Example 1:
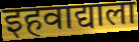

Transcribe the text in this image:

इहवाद्याला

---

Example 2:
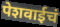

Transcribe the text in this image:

पेशवाईचं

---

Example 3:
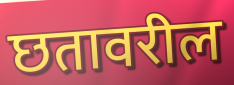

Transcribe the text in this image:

छतावरील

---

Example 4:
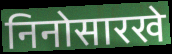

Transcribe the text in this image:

निनोसारखे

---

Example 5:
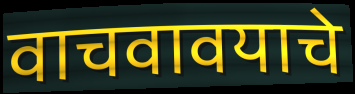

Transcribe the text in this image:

वाचवावयाचे